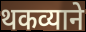
थकव्याने